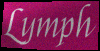
Lymph